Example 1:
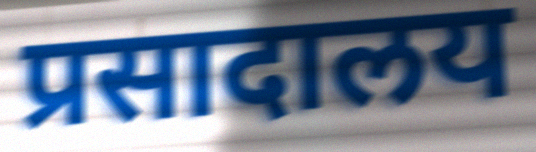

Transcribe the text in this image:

प्रसादालय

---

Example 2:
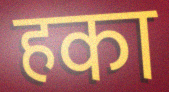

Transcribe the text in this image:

हका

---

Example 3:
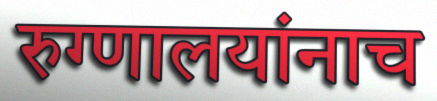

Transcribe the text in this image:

रुग्णालयांनाच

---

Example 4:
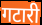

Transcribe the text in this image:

गटारी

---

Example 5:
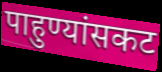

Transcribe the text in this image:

पाहुण्यांसकट